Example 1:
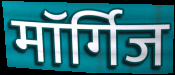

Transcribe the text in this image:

मॉर्गिज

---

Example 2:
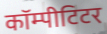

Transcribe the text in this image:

कॉम्पीटिटर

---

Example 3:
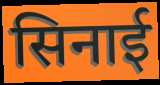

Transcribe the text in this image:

सिनाई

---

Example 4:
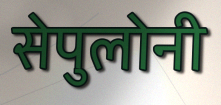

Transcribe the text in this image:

सेपुलोनी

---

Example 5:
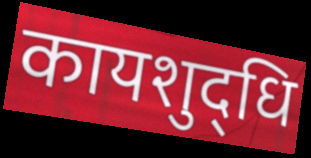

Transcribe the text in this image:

कायशुद्धि